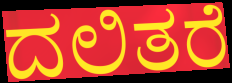
ದಲಿತರೆ